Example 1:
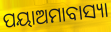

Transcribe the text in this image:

ପୟାଅମାବାସ୍ୟା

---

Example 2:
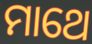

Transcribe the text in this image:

ମାଥେ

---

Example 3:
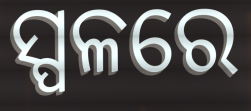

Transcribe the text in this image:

ସ୍ପଳରେ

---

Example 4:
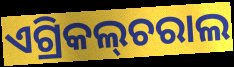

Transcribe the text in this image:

ଏଗ୍ରିକଲ୍‌ଚରାଲ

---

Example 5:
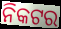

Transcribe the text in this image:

ନିକଟର